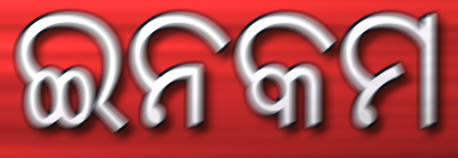
ଇନକମ